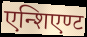
एन्शिएण्ट